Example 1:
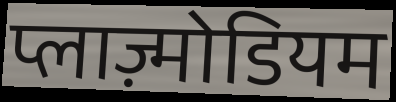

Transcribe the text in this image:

प्लाज़्मोडियम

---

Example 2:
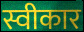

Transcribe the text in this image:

स्वीकार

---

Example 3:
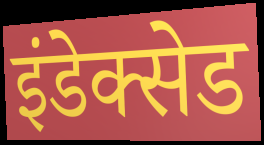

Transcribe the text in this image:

इंडेक्सेड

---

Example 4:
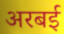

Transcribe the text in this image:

अरबई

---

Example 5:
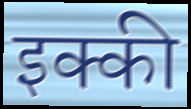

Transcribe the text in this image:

इक्की